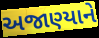
અજાણ્યાને